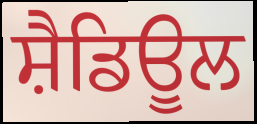
ਸ਼ੈਡਿਊਲ